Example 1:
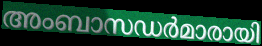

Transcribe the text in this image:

അംബാസഡർമാരായി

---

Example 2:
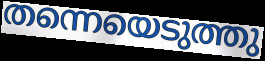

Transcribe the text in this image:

തന്നെയെടുത്തു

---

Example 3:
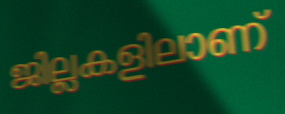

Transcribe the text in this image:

ജില്ലകളിലാണ്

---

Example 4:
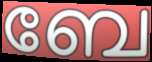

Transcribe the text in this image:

ബേ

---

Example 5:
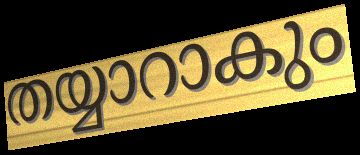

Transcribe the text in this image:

തയ്യാറാകും